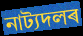
নাট্যদলৰ